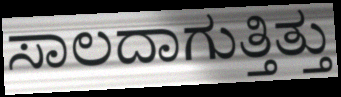
ಸಾಲದಾಗುತ್ತಿತ್ತು